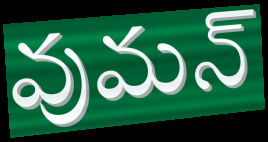
వుమన్